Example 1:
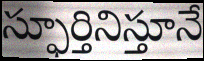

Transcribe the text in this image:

స్ఫూర్తినిస్తూనే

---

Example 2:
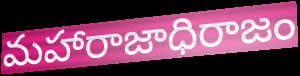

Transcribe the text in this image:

మహారాజాధిరాజం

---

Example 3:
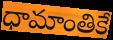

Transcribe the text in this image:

ధామాంతికే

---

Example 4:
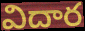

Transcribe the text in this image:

విదార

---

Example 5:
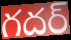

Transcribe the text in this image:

గదర్